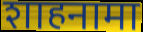
शाहनामा